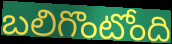
బలిగొంటోంది